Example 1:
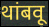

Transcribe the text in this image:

थांबवू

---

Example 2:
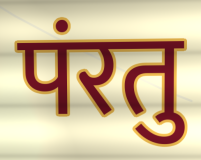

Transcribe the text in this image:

पंरतु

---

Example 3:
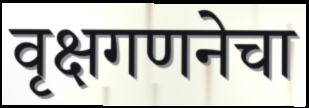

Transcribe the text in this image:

वृक्षगणनेचा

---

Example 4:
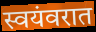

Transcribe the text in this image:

स्वयंवरात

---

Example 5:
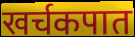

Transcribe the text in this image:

खर्चकपात